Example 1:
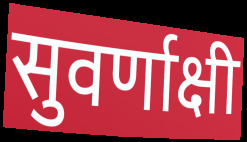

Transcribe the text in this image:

सुवर्णाक्षी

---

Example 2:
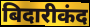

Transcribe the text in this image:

बिदारीकंद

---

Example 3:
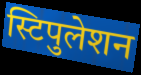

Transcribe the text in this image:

स्टिपुलेशन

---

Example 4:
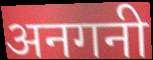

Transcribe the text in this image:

अनगनी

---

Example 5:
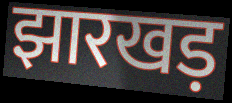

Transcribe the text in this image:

झारखड़